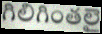
గిలిగింతలై